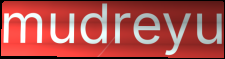
mudreyu